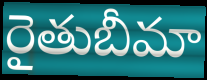
రైతుబీమా